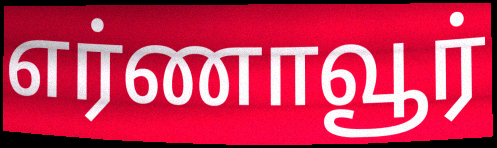
எர்ணாவூர்